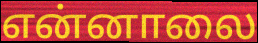
என்னாலை